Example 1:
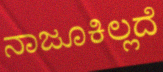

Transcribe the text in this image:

ನಾಜೂಕಿಲ್ಲದೆ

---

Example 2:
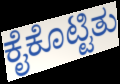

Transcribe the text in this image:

ಕೈಕೊಟ್ಟಿತು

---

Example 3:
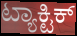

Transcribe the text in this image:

ಟ್ಯಾಕ್ಟಿಕ್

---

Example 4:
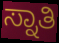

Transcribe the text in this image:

ಸ್ನಾತಿ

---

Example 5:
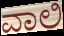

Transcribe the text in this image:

ವಾಲಿ